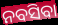
ନବସିବା